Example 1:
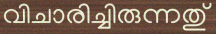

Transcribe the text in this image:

വിചാരിച്ചിരുന്നതു്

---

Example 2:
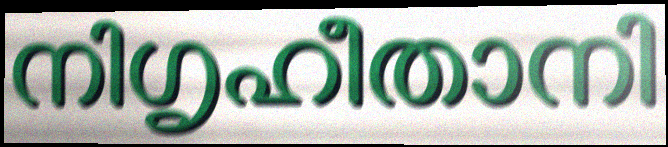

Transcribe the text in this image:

നിഗൃഹീതാനി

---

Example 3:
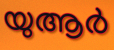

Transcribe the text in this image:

യുആർ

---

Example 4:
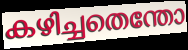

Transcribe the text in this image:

കഴിച്ചതെന്തോ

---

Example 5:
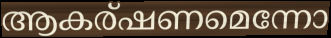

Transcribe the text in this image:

ആകര്ഷണമെന്നോ